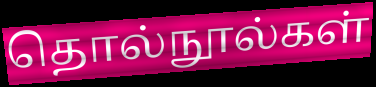
தொல்நூல்கள்